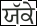
ਯੱਕੇ